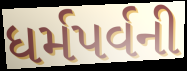
ધર્મપર્વની